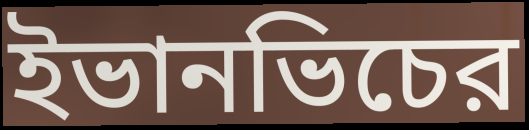
ইভানভিচের